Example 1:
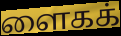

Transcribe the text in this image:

ளைகக்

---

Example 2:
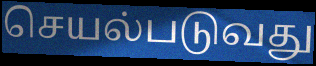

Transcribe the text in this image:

செயல்படுவது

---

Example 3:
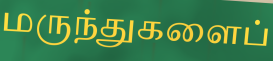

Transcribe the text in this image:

மருந்துகளைப்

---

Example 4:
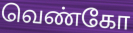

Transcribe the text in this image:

வெண்கோ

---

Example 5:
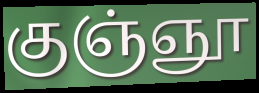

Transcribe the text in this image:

குஞ்ஞூ